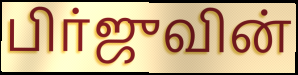
பிர்ஜுவின்